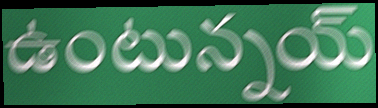
ఉంటున్నయ్